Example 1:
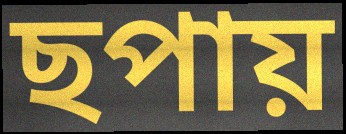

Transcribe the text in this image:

ছপায়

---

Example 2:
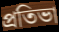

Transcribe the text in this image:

প্ৰতিভা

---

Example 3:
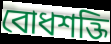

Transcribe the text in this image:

বোধশক্তি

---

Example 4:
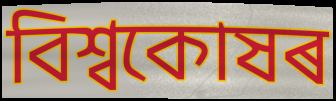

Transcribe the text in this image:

বিশ্বকোষৰ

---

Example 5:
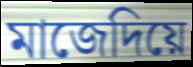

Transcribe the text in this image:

মাজেদিয়ে